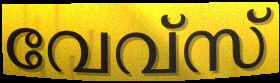
വേവ്സ്